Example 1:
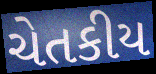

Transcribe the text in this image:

ચેતકીય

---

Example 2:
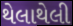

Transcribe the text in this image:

થેલાથેલી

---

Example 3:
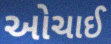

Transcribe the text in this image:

ઓચાઈ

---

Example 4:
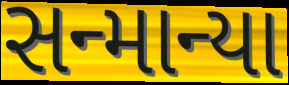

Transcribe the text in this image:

સન્માન્યા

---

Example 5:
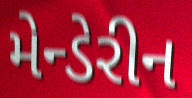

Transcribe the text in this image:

મેન્ડેરીન